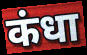
कंधा